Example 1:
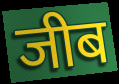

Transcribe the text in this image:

जीब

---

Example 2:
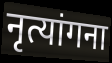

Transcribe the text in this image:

नृत्यांगना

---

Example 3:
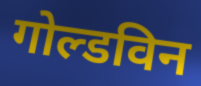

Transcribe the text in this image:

गोल्डविन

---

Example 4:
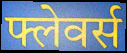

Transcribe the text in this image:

फ्लेवर्स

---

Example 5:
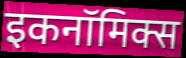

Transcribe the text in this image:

इकनॉमिक्स